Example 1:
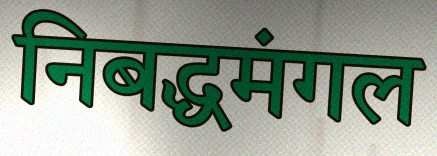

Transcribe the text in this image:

निबद्धमंगल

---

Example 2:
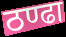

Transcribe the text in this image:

ठण्ढा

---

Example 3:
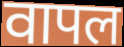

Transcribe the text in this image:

वापल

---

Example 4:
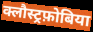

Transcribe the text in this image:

क्लौस्ट्रफ़ोबिया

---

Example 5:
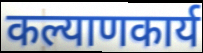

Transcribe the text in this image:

कल्याणकार्य